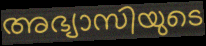
അഭ്യാസിയുടെ